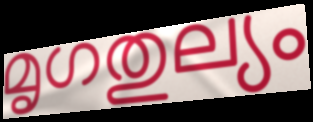
മൃഗതുല്യം